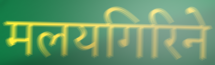
मलयगिरिने